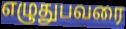
எழுதுபவரை